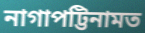
নাগাপট্টিনামত